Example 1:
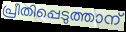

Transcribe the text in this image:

പ്രീതിപ്പെടുത്താന്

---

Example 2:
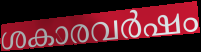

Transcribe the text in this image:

ശകാരവർഷം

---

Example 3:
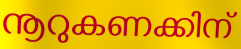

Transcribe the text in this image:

നൂറുകണക്കിന്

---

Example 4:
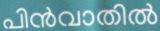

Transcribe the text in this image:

പിൻവാതിൽ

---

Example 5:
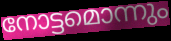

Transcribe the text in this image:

നോട്ടമൊന്നും